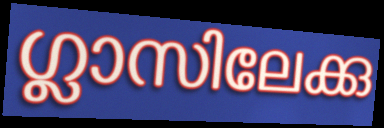
ഗ്ലാസിലേക്കു